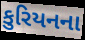
કુરિયનના